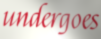
undergoes